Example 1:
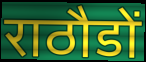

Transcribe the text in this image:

राठौडों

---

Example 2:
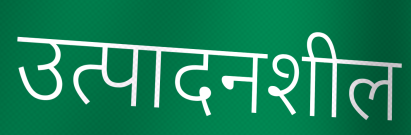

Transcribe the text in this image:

उत्पादनशील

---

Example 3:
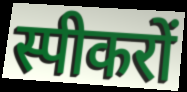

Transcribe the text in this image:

स्पीकरों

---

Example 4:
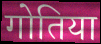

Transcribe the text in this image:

गोतिया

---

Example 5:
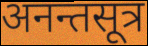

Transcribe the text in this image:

अनन्तसूत्र